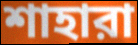
শাহারা